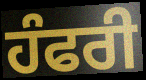
ਹੰਫਰੀ